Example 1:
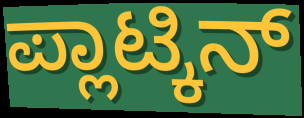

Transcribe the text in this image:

ಪ್ಲಾಟ್ಕಿನ್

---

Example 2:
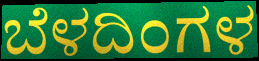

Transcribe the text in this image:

ಬೆಳದಿಂಗಳ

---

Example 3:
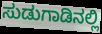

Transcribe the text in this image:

ಸುಡುಗಾಡಿನಲ್ಲಿ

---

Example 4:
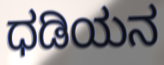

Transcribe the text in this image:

ಧಡಿಯನ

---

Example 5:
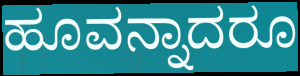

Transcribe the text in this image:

ಹೂವನ್ನಾದರೂ